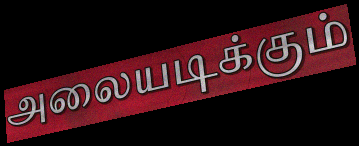
அலையடிக்கும்